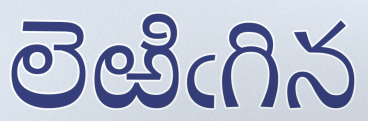
లెఱిఁగిన